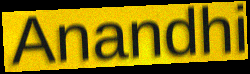
Anandhi